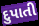
દુપાતી